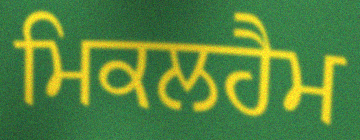
ਮਿਕਲਹੈਮ